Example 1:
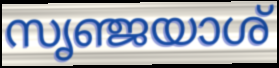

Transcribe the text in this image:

സൃഞ്ജയാശ്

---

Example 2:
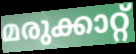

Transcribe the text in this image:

മരുക്കാറ്റ്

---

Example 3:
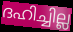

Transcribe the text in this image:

ദഹിച്ചില്ല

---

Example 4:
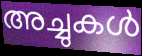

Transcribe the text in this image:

അച്ചുകൾ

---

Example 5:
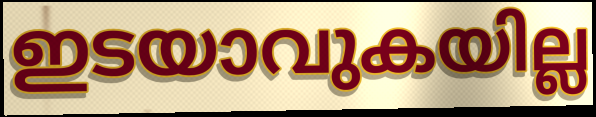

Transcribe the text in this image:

ഇടയാവുകയില്ല